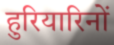
हुरियारिनों